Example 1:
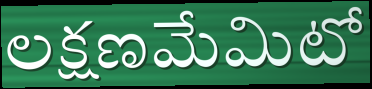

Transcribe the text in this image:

లక్షణమేమిటో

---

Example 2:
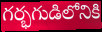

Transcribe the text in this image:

గర్భగుడిలోనికి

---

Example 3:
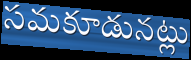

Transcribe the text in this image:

సమకూడునట్లు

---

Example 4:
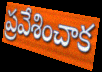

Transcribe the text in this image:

ప్రవేశించాక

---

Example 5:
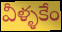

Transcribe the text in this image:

వీళ్ళకేం